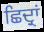
ਛਿਦ੍ਰਾਂ